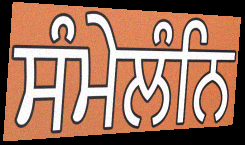
ਸੰਮੇਲੰਨਿ